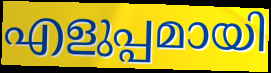
എളുപ്പമായി